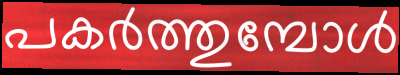
പകർത്തുമ്പോൾ